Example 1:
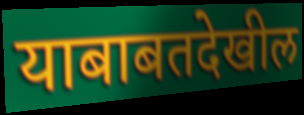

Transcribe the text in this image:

याबाबतदेखील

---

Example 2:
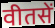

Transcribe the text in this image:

वीतसें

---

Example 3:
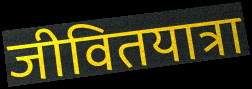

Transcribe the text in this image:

जीवितयात्रा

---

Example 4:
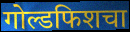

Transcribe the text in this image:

गोल्डफिशचा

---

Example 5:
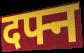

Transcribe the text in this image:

दफ्न